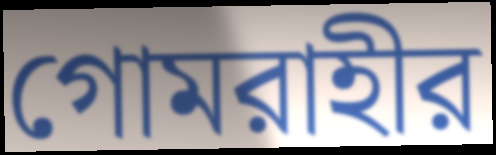
গোমরাহীর